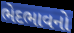
ભેદભાવનો